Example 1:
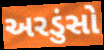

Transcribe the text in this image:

અરડુંસો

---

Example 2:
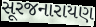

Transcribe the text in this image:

સૂરજનારાયણ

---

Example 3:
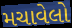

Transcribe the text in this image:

મચાવેલો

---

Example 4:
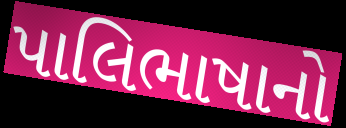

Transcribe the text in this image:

પાલિભાષાનો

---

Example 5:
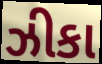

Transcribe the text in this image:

ઝીકા